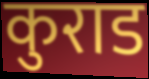
कुराड